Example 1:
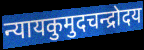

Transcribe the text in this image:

न्यायकुमुदचन्द्रोदय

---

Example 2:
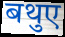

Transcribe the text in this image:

बथुए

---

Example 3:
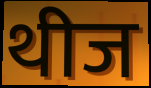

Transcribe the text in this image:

थीज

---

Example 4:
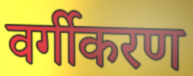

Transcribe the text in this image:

वर्गीकरण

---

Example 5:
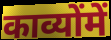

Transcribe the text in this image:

काव्योंमें